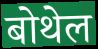
बोथेल